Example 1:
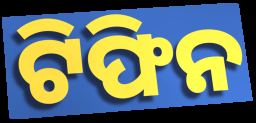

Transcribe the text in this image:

ଟିଫିନ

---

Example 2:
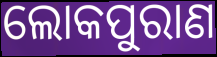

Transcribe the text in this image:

ଲୋକପୁରାଣ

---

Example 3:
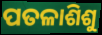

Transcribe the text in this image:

ପତଳାଶିଶୁ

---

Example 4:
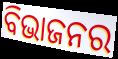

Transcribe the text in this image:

ବିଭାଜନର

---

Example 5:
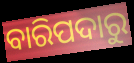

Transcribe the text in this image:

ବାରିପଦାରୁ